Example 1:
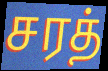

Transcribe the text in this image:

சரத்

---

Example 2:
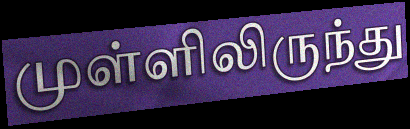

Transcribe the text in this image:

முள்ளிலிருந்து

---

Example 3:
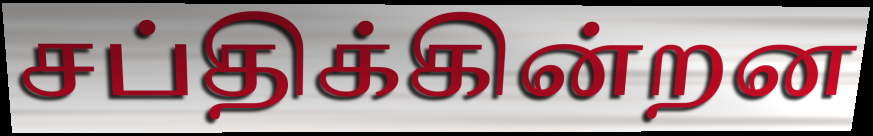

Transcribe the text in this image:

சப்திக்கின்றன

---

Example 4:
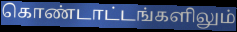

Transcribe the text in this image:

கொண்டாட்டங்களிலும்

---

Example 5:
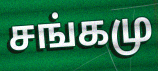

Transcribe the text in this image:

சங்கமு